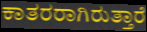
ಕಾತರರಾಗಿರುತ್ತಾರೆ